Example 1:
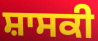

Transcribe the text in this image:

ਸ਼ਾਸਕੀ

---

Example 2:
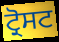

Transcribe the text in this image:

ਟ੍ਰੋਸਟ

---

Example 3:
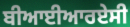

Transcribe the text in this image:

ਬੀਆਈਆਰਏਸੀ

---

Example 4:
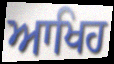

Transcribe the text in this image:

ਆਖਿਹ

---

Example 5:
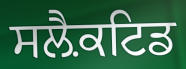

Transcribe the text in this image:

ਸਲ਼ੈਕਟਿਡ